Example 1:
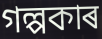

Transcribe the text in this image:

গল্পকাৰ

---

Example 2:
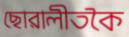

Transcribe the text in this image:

ছোৱালীতকৈ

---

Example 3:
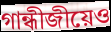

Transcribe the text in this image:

গান্ধীজীয়েও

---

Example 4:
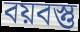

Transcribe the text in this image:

বয়বস্তু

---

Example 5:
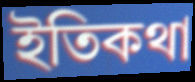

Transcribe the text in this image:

ইতিকথা